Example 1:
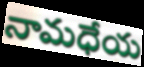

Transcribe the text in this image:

నామధేయ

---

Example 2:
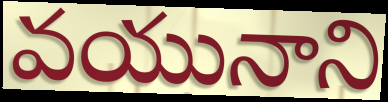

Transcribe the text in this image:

వయునాని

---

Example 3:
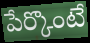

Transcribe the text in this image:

పేర్కొంటే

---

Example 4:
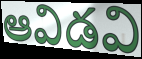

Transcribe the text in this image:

ఆవిడవి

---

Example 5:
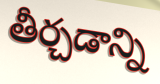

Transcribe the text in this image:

తీర్చడాన్ని